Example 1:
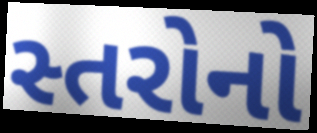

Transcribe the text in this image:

સ્તરોનો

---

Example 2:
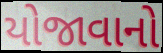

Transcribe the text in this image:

યોજાવાનો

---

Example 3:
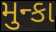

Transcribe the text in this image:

મુન્કા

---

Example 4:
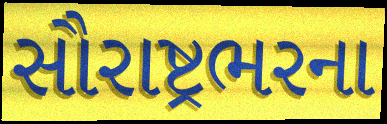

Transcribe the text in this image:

સૌરાષ્ટ્રભરના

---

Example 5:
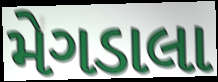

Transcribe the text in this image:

મેગડાલા